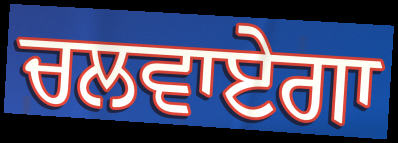
ਚਲਵਾਏਗਾ